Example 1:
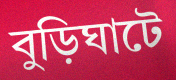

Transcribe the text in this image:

বুড়িঘাটে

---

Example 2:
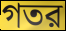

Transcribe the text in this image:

গতর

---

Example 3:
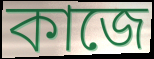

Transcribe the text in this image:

কাজে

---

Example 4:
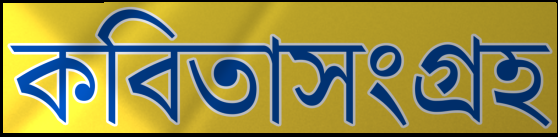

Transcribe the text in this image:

কবিতাসংগ্রহ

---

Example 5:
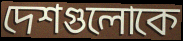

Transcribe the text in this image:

দেশগুলোকে